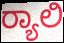
ರ‍್ಯಾಲಿ